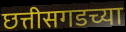
छत्तीसगडच्या